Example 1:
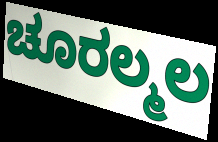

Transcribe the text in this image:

ಚೂರಲ್ಮಲ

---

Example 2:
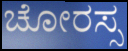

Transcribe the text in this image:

ಚೋರಸ್ಸ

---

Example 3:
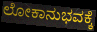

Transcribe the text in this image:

ಲೋಕಾನುಭವಕ್ಕೆ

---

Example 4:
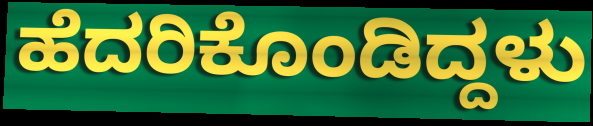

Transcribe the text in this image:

ಹೆದರಿಕೊಂಡಿದ್ದಳು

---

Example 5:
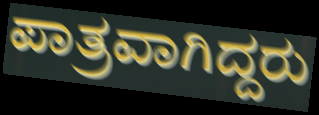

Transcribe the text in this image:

ಪಾತ್ರವಾಗಿದ್ದರು